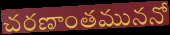
చరణాంతముననో